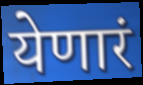
येणारं